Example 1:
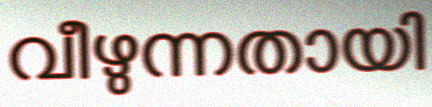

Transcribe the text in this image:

വീഴുന്നതായി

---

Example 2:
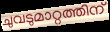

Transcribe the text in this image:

ചുവടുമാറ്റത്തിന്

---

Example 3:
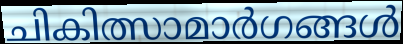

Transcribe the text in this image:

ചികിത്സാമാർഗങ്ങൾ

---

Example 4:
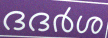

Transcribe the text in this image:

ദദർശ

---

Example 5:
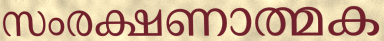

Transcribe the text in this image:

സംരക്ഷണാത്മക